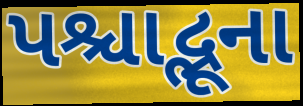
પશ્ચાદ્ભૂના